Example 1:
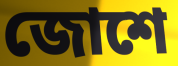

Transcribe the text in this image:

জোশে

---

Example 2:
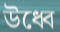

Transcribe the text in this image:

উধ্বে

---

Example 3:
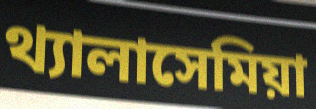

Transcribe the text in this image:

থ্যালাসেমিয়া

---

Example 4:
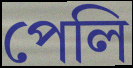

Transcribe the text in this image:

পেলি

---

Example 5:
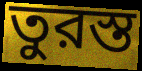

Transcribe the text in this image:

তুরস্ত